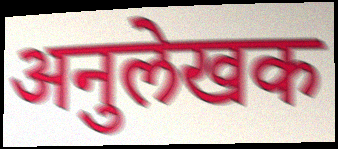
अनुलेखक